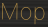
Mop